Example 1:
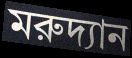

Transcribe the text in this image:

মরুদ্যান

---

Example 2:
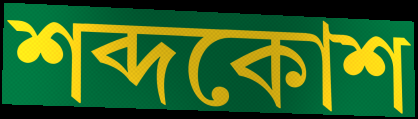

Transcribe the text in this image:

শব্দকোশ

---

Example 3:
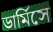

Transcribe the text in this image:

ডার্মিসে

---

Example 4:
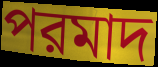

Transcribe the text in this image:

পরমাদ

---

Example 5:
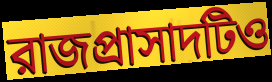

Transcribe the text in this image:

রাজপ্রাসাদটিও